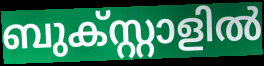
ബുക്സ്റ്റാളിൽ